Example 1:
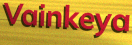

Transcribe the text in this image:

Vainkeya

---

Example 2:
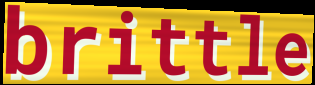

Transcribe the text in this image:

brittle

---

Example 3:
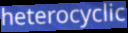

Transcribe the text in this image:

heterocyclic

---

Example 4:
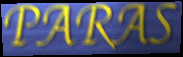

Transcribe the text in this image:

PARAS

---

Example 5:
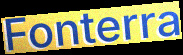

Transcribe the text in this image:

Fonterra